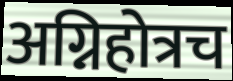
अग्निहोत्रच